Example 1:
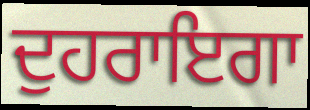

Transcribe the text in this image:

ਦੁਹਰਾਇਗਾ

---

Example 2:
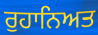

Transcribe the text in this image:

ਰੁਹਾਨਿਅਤ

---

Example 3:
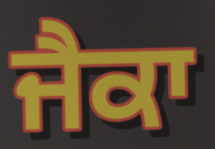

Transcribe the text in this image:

ਜੈਕਾ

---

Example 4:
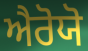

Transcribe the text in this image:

ਐਰੋਯੋ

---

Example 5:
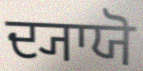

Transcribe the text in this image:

ਦ੍ਯਾਯੋ